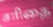
சரிதை